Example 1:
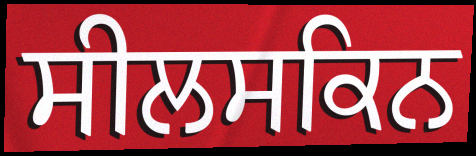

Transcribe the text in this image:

ਸੀਲਸਕਿਨ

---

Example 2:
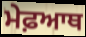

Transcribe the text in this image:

ਮੇਫ਼ਆਥ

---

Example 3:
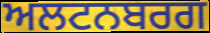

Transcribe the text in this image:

ਅਲਟਨਬਰਗ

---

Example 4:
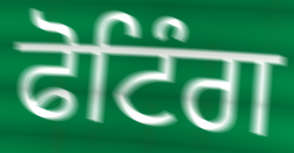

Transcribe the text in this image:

ਫੋਟਿੰਗ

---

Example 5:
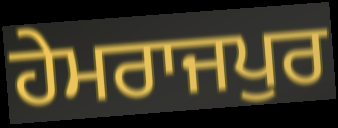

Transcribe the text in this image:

ਹੇਮਰਾਜਪੁਰ